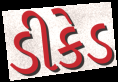
ડીકેડ